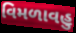
વિમળાવહુ